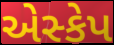
એસ્કેપ